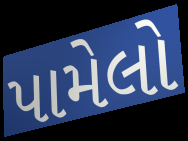
પામેલો